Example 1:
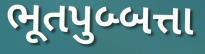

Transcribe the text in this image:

ભૂતપુબ્બત્તા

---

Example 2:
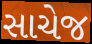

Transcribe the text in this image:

સાચેજ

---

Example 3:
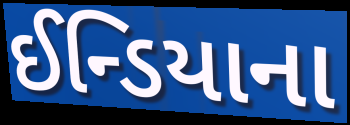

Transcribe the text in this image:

ઈન્ડિયાના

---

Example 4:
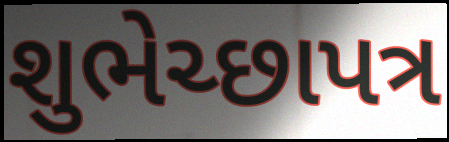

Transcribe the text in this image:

શુભેચ્છાપત્ર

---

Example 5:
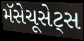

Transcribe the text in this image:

મૅસેચૂસેટ્સ